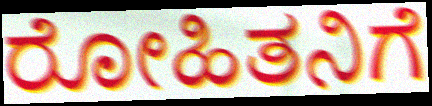
ರೋಹಿತನಿಗೆ